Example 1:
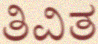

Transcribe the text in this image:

ತಿವಿತ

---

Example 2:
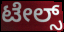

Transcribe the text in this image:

ಟೇಲ್ಸ್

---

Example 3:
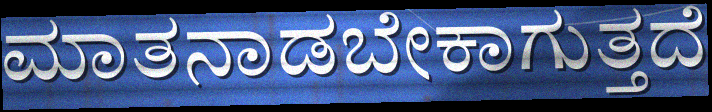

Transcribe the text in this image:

ಮಾತನಾಡಬೇಕಾಗುತ್ತದೆ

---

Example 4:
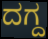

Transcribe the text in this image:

ದಗ್ದ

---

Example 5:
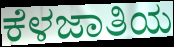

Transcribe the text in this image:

ಕೆಳಜಾತಿಯ